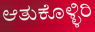
ಆತುಕೊಳ್ಳಿರಿ